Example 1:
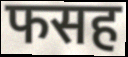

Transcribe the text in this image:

फसह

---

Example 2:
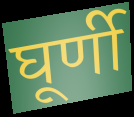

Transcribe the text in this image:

घूर्णी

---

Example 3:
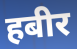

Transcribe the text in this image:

हबीर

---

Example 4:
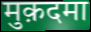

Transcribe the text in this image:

मुक़दमा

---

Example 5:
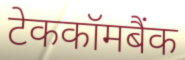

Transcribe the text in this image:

टेककॉमबैंक